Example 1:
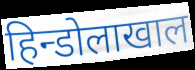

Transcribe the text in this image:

हिन्डोलाखाल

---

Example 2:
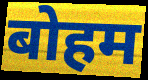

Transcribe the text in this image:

बोहम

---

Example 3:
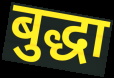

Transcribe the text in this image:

बुद्धा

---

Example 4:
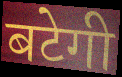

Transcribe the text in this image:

बटेगी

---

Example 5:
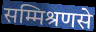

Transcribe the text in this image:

सम्मिश्रणसे